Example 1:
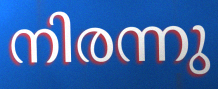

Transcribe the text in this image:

നിരന്നു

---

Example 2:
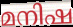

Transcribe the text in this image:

മനിഷ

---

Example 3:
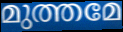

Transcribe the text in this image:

മുത്തമേ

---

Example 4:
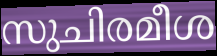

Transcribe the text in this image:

സുചിരമീശ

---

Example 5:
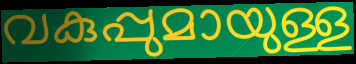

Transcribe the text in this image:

വകുപ്പുമായുള്ള